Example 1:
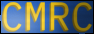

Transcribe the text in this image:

CMRC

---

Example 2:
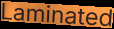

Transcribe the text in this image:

Laminated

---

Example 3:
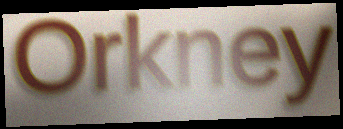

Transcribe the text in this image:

Orkney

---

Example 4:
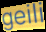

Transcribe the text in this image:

geili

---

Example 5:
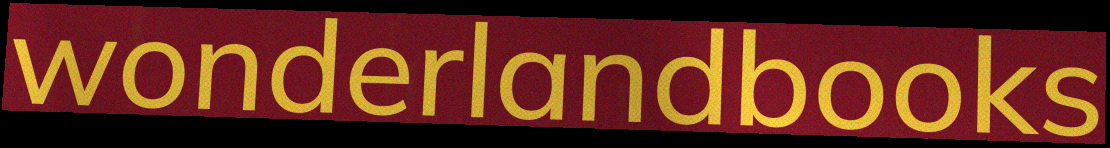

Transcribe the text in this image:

wonderlandbooks